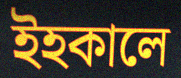
ইহকালে